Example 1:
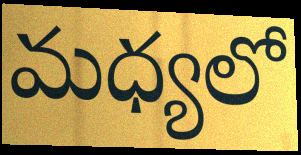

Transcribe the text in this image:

మధ్యలో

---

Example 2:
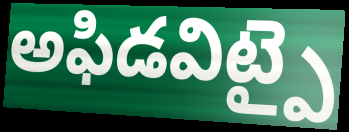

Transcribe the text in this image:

అఫిడవిట్పై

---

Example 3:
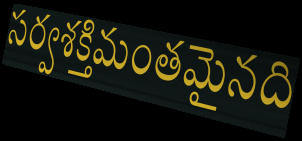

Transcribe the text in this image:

సర్వశక్తిమంతమైనది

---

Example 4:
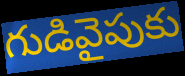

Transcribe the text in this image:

గుడివైపుకు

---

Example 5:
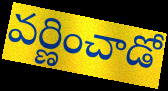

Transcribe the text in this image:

వర్ణించాడో